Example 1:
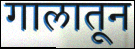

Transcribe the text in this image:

गालातून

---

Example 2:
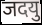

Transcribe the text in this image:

जदयु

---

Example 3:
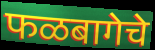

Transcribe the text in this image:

फळबागेचे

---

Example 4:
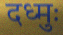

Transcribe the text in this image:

दध्मुः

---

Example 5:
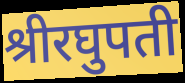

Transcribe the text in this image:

श्रीरघुपती